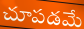
చూపడమే